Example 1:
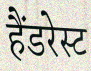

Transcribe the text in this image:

हैंडरेस्ट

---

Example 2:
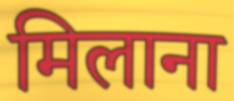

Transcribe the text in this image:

मिलाना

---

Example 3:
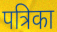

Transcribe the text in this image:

पत्रिका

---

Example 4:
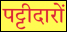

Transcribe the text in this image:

पट्टीदारों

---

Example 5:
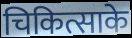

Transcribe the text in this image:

चिकित्साके